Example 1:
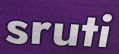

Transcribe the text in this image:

sruti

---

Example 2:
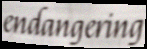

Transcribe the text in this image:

endangering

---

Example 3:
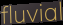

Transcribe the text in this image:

fluvial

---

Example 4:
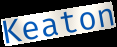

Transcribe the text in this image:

Keaton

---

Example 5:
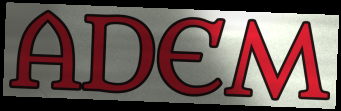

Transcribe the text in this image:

ADEM